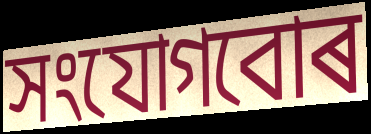
সংযোগবোৰ